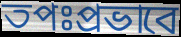
তপঃপ্রভাবে